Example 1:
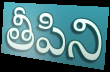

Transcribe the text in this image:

తీపిని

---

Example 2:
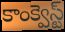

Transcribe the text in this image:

కాంక్వెస్ట్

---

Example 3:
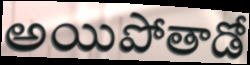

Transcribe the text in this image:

అయిపోతాడో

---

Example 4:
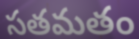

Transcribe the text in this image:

సతమతం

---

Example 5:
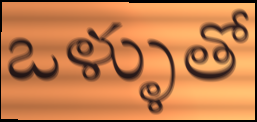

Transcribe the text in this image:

ఒళ్ళుతో